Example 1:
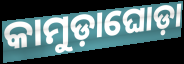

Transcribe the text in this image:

କାମୁଡ଼ାଘୋଡ଼ା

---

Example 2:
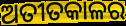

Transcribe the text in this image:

ଅତୀତକାଳର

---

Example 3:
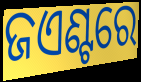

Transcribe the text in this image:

ଜଏଣ୍ଟରେ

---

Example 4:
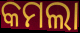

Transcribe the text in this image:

କମଲା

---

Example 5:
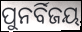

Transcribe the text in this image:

ପୁନର୍ବିଜୟ